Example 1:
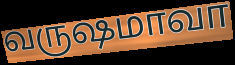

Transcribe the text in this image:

வருஷமாவா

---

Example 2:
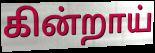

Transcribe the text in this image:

கின்றாய்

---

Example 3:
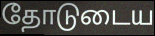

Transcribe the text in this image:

தோடுடைய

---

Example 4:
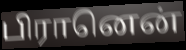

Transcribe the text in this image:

பிரானென்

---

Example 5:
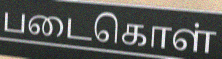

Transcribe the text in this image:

படைகொள்